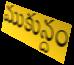
ముకున్దం